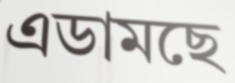
এডামছে